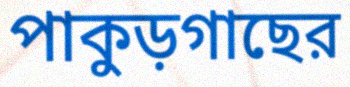
পাকুড়গাছের